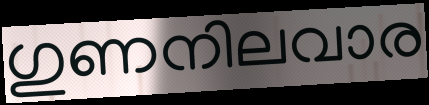
ഗുണനിലവാര